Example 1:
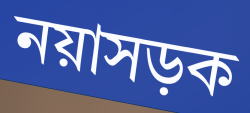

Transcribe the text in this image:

নয়াসড়ক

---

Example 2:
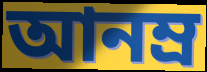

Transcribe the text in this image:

আনম্র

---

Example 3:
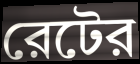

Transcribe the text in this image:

রেটের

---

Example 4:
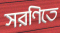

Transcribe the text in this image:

সরণিতে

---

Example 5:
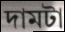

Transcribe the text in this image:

দামটা